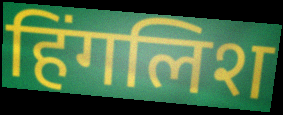
हिंगलिश